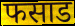
फसाड